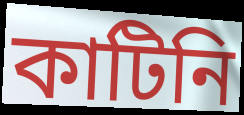
কাটিনি